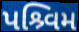
પશ્ર્વિમ